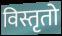
विस्तृतो